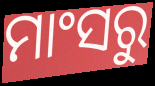
ମାଂସରୁ